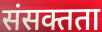
संसक्तता